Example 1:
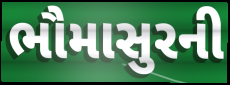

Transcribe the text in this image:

ભૌમાસુરની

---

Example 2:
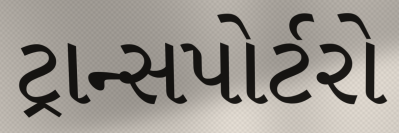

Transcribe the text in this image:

ટ્રાન્સપોર્ટરો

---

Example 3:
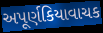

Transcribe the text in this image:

અપૂર્ણકિયાવાચક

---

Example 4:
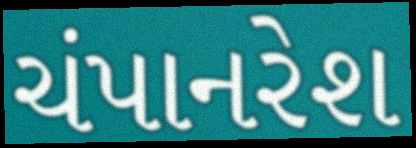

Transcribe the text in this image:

ચંપાનરેશ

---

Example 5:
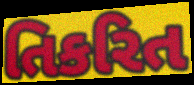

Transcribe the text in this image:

તિકરિત